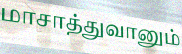
மாசாத்துவானும்